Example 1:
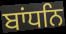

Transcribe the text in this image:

ਬਾਂਧਨਿ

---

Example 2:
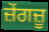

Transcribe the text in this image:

ਜ਼ੇਂਗਜ਼ੂ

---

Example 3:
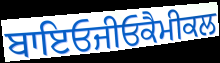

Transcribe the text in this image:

ਬਾਇਓਜੀਓਕੈਮੀਕਲ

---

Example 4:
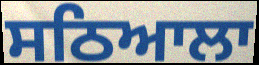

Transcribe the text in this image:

ਸਠਿਆਲਾ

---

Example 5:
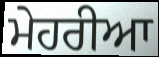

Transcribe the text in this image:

ਮੇਹਰੀਆ